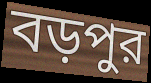
বড়পুর